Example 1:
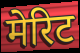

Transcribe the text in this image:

मेरिट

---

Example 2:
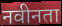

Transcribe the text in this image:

नवीनता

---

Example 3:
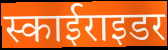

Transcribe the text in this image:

स्काईराइडर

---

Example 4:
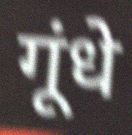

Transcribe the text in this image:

गूंधे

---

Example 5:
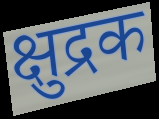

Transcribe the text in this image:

क्षुद्रक